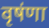
वृष॑णा